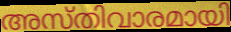
അസ്തിവാരമായി